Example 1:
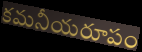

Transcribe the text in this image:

కమనీయరూపం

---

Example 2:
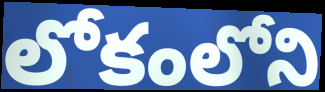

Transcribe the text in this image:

లోకంలోని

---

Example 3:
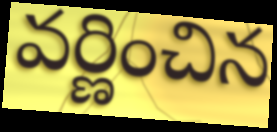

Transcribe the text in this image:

వర్ణించిన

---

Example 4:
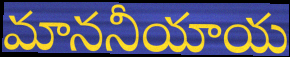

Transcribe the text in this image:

మాననీయాయ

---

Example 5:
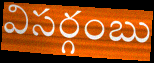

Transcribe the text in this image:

విసర్గంబు